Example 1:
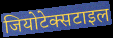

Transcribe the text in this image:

जियोटेक्सटाइल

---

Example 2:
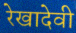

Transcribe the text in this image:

रेखादेवी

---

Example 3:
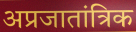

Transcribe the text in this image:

अप्रजातांत्रिक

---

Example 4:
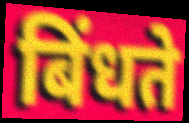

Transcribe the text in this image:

बिंधते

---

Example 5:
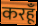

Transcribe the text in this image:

करहूँ